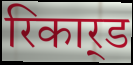
रिकार्ड